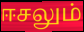
ஈசலும்